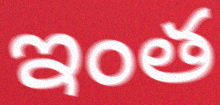
ఇంత